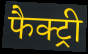
फैक्ट्री